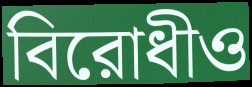
বিরোধীও